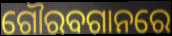
ଗୌରବଗାନରେ